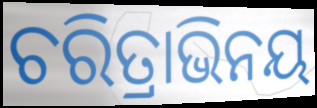
ଚରିତ୍ରାଭିନୟ